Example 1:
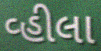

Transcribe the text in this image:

વ્હીલા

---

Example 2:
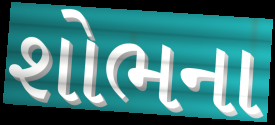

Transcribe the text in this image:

શોભના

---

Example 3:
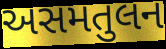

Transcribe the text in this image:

અસમતુલન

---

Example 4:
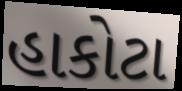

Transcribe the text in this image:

હાકોટા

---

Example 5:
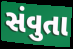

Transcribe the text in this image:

સંવુતા